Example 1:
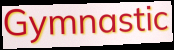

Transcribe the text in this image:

Gymnastic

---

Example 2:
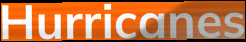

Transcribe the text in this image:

Hurricanes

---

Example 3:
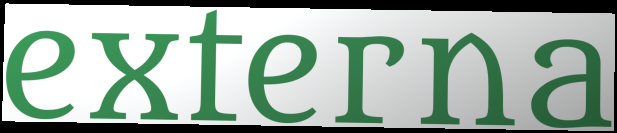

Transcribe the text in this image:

externa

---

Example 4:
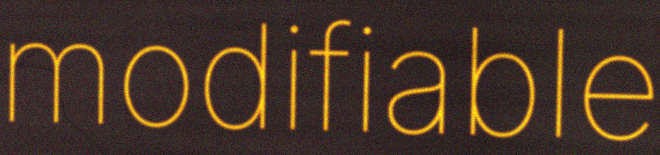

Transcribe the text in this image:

modifiable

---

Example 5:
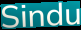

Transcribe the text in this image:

Sindu